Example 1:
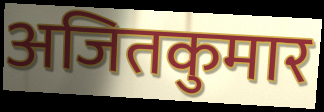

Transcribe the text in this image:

अजितकुमार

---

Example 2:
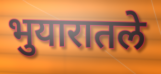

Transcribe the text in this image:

भुयारातले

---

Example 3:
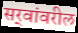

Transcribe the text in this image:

सर्वांवरील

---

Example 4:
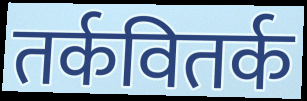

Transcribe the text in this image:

तर्कवितर्क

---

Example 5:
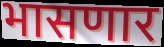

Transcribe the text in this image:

भासणार